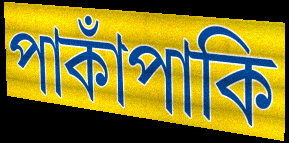
পাকাঁপাকি